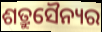
ଶତ୍ରୁସୈନ୍ୟର